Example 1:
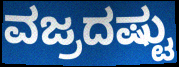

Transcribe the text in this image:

ವಜ್ರದಷ್ಟು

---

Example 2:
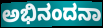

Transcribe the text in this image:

ಅಭಿನಂದನಾ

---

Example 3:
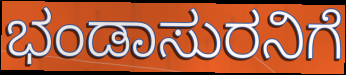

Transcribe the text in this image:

ಭಂಡಾಸುರನಿಗೆ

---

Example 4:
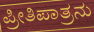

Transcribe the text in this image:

ಪ್ರೀತಿಪಾತ್ರನು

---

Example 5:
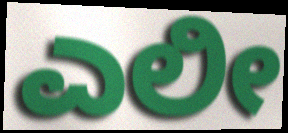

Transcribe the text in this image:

ಎಲೀ